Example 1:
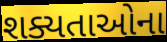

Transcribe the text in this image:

શક્યતાઓના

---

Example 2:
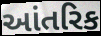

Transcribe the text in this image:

આંતરિક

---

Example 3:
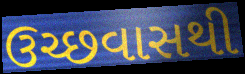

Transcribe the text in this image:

ઉચ્છવાસથી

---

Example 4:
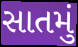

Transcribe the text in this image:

સાતમું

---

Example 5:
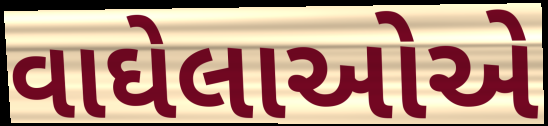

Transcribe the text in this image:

વાઘેલાઓએ